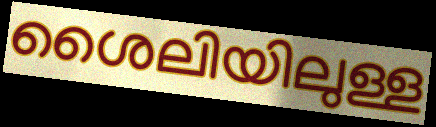
ശൈലിയിലുള്ള